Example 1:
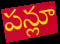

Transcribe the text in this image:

పన్లూ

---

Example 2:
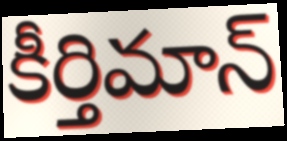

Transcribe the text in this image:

కీర్తిమాన్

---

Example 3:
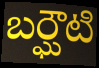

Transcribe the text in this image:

బర్ఘౌటి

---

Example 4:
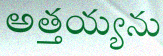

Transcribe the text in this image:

అత్తయ్యను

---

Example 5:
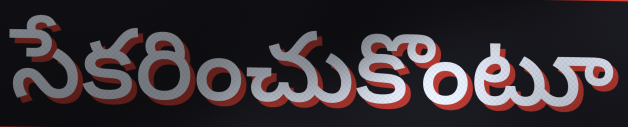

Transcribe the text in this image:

సేకరించుకొంటూ